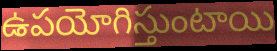
ఉపయోగిస్తుంటాయి